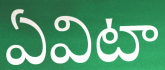
ఏవిటా